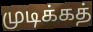
முடிக்கத்